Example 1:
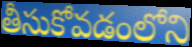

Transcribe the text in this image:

తీసుకోవడంలోని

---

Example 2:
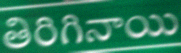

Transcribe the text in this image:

తిరిగినాయి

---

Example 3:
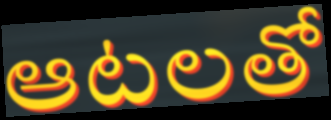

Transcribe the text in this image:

ఆటలతో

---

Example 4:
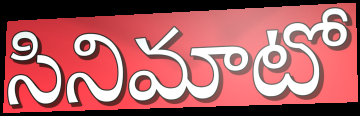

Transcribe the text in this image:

సినిమాటో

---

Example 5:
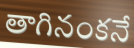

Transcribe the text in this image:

తాగినంకనే